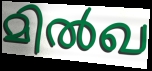
മിൽഖ